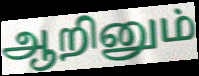
ஆறினும்